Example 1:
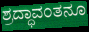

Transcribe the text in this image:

ಶ್ರದ್ಧಾವಂತನೂ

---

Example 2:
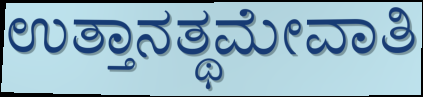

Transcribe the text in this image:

ಉತ್ತಾನತ್ಥಮೇವಾತಿ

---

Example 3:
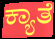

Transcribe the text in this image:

ಕ್ಯಾತೆ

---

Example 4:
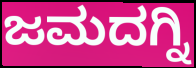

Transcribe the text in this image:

ಜಮದಗ್ನಿ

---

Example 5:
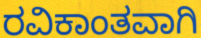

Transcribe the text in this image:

ರವಿಕಾಂತವಾಗಿ